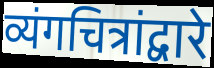
व्यंगचित्रांद्वारे